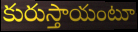
కురుస్తాయంటూ